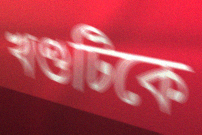
খণ্ডটিকে